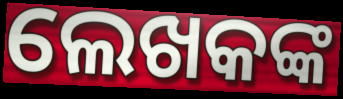
ଲେଖକଙ୍କ